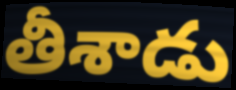
తీశాడు